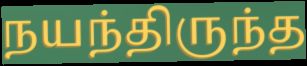
நயந்திருந்த